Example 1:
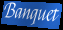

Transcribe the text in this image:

Banquet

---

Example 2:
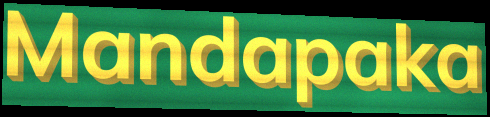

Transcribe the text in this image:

Mandapaka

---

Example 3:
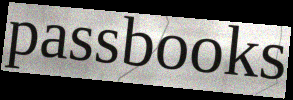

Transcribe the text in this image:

passbooks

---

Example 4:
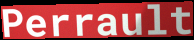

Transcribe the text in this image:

Perrault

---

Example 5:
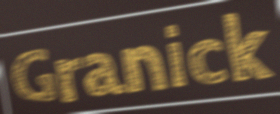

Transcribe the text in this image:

Granick